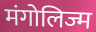
मंगोलिज्म